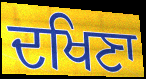
ਦਖਿਣਾ